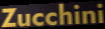
Zucchini